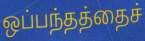
ஒப்பந்தத்தைச்